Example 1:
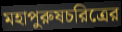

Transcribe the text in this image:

মহাপুরুষচরিত্রের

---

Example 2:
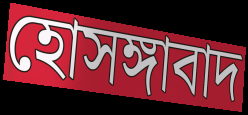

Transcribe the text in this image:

হোসঙ্গাবাদ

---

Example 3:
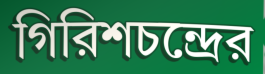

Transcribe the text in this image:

গিরিশচন্দ্রের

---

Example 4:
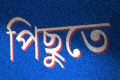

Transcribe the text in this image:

পিছুতে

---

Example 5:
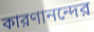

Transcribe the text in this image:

কারণানন্দের